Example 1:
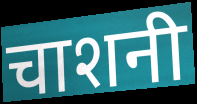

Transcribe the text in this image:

चाशनी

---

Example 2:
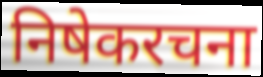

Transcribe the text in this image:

निषेकरचना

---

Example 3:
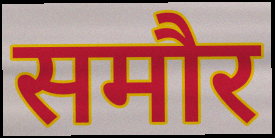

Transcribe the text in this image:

समौर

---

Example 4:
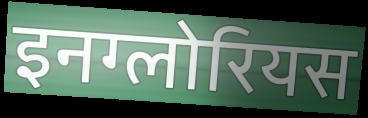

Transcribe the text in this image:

इनग्लोरियस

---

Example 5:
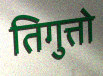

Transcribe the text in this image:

तिगुत्तो